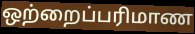
ஒற்றைப்பரிமாண